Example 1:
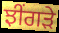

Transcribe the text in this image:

ਝੀਂਗੜੇ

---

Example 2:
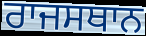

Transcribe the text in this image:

ਰਾਜਸਥਾਨ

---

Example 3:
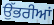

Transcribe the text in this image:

ਉੱਭਰੀਆਂ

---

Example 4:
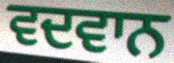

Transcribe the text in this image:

ਵਦਵਾਨ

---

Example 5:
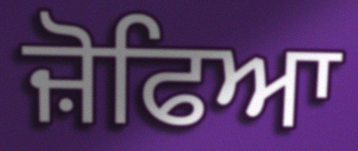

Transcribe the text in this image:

ਜ਼ੋਫਿਆ